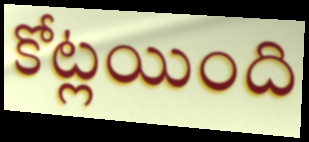
కోట్లయింది